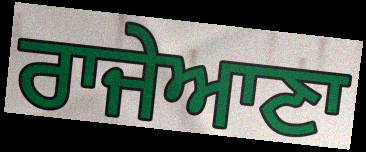
ਰਾਜੇਆਣਾ